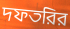
দফতরির